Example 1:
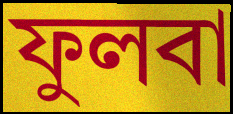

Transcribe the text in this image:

ফুলবা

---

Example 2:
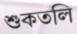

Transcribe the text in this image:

শুকতলি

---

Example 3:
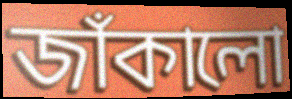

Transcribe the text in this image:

জাঁকালো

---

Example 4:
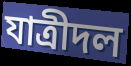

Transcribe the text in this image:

যাত্রীদল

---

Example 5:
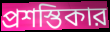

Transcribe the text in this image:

প্রশস্তিকার